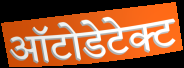
ऑटोडेटेक्ट